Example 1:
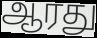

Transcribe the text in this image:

ஆரது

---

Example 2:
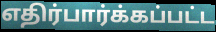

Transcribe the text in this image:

எதிர்பார்க்கப்பட்ட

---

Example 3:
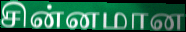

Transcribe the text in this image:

சின்னமான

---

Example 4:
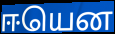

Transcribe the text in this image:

ஈயென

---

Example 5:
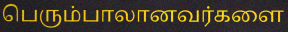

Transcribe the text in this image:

பெரும்பாலானவர்களை